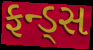
ફન્ડ્સ